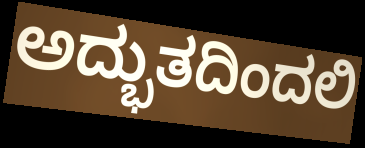
ಅದ್ಭುತದಿಂದಲಿ